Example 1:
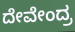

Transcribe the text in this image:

ದೇವೇಂದ್ರ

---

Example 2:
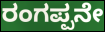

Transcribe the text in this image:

ರಂಗಪ್ಪನೇ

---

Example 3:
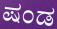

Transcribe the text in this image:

ಷಂಡ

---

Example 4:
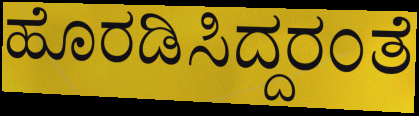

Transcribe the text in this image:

ಹೊರಡಿಸಿದ್ದರಂತೆ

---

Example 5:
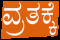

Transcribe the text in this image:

ವ್ರತಕ್ಕೆ